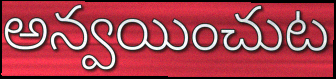
అన్వయించుట